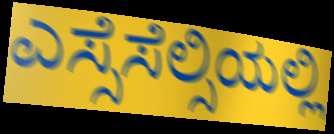
ಎಸ್ಸೆಸೆಲ್ಸಿಯಲ್ಲಿ